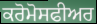
ਕਰੋਮੋਸਫੀਅਰ